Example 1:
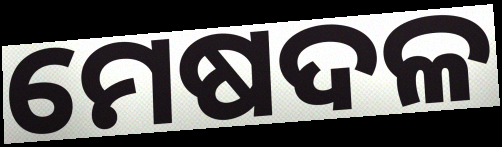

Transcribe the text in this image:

ମେଷଦଳ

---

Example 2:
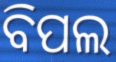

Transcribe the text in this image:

ବିପଲ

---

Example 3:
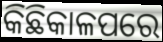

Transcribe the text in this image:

କିଛିକାଳପରେ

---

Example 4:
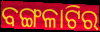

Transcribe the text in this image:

ବଙ୍ଗଳାଟିର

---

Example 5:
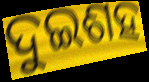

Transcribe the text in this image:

ଦୁଇଶହ